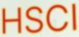
HSCI